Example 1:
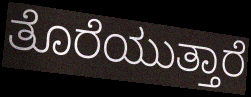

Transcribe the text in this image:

ತೊರೆಯುತ್ತಾರೆ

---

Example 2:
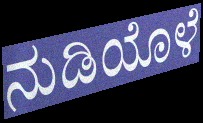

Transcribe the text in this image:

ನುಡಿಯೊಳೆ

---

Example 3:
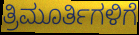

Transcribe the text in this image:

ತ್ರಿಮೂರ್ತಿಗಳಿಗೆ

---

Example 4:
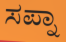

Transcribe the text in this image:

ಸಪ್ನಾ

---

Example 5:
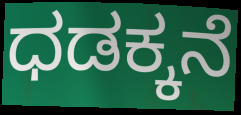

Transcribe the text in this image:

ಧಡಕ್ಕನೆ